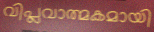
വിപ്ലവാത്മകമായി